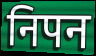
निपन